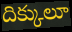
దిక్కులూ